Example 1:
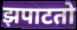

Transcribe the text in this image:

झपाटतो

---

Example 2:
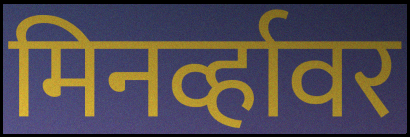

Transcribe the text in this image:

मिनर्व्हावर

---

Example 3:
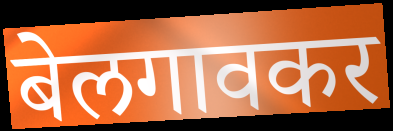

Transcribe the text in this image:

बेलगावकर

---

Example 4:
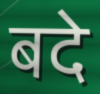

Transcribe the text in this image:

बदे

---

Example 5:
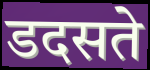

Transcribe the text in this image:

डदसते